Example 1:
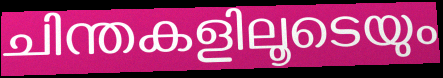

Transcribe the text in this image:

ചിന്തകളിലൂടെയും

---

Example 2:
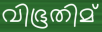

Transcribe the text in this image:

വിഭൂതിമ്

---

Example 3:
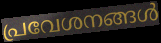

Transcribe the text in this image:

പ്രവേശനങ്ങൾ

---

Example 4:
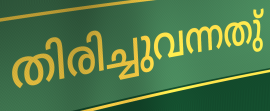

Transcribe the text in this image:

തിരിച്ചുവന്നതു്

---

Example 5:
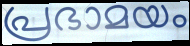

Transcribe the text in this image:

പ്രഭാമയം